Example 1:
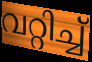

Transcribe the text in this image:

വറ്റിച്ച്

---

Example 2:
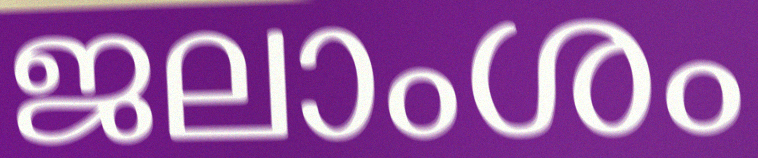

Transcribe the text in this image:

ജലാംശം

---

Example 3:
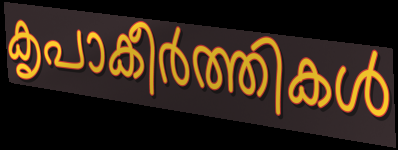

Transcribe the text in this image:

കൃപാകീർത്തികൾ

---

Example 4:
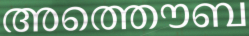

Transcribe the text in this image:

അത്തൌബ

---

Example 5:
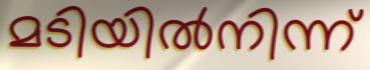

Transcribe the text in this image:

മടിയിൽനിന്ന്